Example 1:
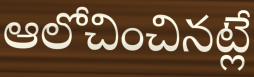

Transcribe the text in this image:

ఆలోచించినట్లే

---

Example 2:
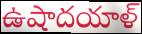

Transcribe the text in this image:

ఉషాదయాళ్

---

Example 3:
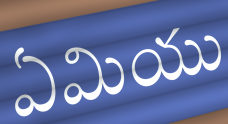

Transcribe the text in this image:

ఏమియు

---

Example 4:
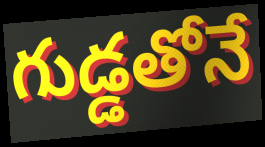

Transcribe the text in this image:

గుడ్డతోనే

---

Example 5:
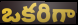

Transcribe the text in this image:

ఒకరిగా